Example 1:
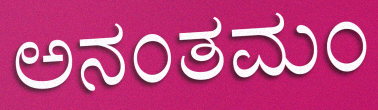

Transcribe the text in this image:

ಅನಂತಮಂ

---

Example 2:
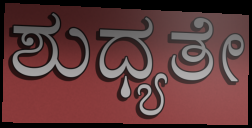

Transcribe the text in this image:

ಶುಧ್ಯತೇ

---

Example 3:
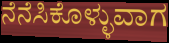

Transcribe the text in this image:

ನೆನೆಸಿಕೊಳ್ಳುವಾಗ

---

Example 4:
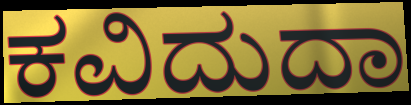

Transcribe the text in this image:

ಕವಿದುದಾ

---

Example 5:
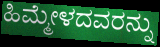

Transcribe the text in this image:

ಹಿಮ್ಮೇಳದವರನ್ನು